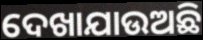
ଦେଖାଯାଉଅଛି